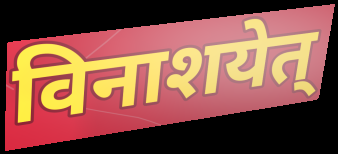
विनाशयेत्